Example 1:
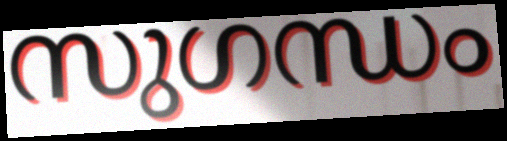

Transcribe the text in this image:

സുഗന്ധം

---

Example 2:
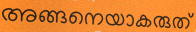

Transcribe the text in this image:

അങ്ങനെയാകരുത്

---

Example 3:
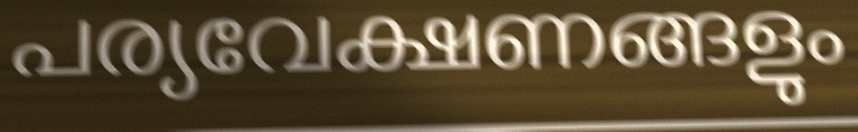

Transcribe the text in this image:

പര്യവേക്ഷണങ്ങളും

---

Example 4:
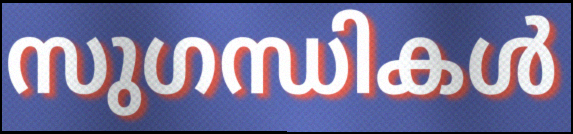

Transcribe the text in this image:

സുഗന്ധികൾ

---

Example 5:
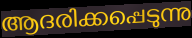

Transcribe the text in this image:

ആദരിക്കപ്പെടുന്നു